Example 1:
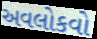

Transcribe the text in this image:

અવલોકવો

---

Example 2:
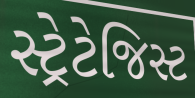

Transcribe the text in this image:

સ્ટ્રેટેજિસ્ટ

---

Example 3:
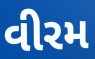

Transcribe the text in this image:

વીરમ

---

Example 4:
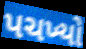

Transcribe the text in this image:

પચખ્યો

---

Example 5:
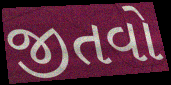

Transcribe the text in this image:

જીતવો